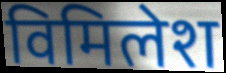
विमिलेश